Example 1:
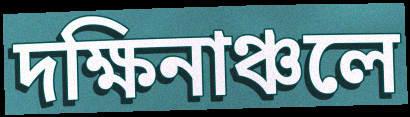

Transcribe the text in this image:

দক্ষিনাঞ্চলে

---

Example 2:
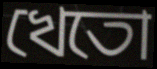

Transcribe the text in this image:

খেতো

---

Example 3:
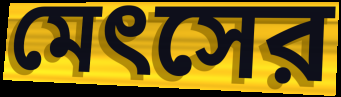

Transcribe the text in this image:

মেৎসের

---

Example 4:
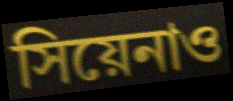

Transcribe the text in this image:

সিয়েনাও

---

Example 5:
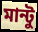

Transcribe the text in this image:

মান্টু